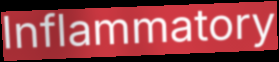
Inflammatory